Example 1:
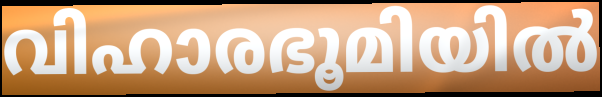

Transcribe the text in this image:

വിഹാരഭൂമിയിൽ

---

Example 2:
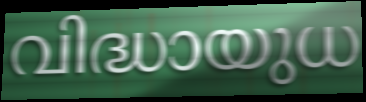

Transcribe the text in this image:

വിദ്ധായുധ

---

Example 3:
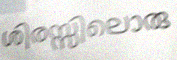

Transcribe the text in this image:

ശിരസ്സിലൊരു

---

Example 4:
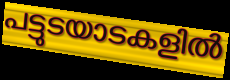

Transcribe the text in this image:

പട്ടുടയാടകളിൽ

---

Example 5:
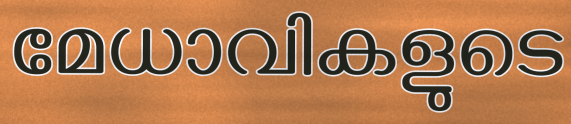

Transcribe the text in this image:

മേധാവികളുടെ